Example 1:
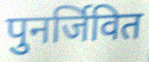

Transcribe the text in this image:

पुनर्जिवित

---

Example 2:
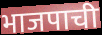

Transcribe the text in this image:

भाजपाची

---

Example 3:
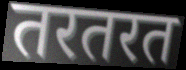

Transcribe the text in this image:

तरतरत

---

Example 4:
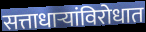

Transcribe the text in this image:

सत्ताधाऱ्यांविरोधात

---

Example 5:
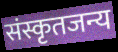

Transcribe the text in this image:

संस्कृतजन्य